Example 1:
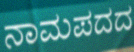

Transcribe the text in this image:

ನಾಮಪದದ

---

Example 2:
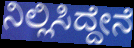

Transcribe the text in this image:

ನಿಲ್ಲಿಸಿದ್ದೇನೆ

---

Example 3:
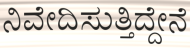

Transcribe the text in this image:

ನಿವೇದಿಸುತ್ತಿದ್ದೇನೆ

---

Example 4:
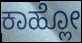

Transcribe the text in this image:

ಕಾಹ್ಲೋ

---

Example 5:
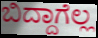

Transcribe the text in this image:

ಬಿದ್ದಾಗೆಲ್ಲ